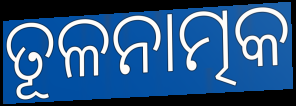
ତୂଳନାତ୍ମକ